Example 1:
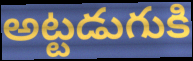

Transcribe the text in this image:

అట్టడుగుకి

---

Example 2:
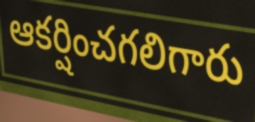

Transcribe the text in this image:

ఆకర్షించగలిగారు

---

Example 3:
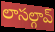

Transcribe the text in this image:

లాసల్గావ్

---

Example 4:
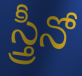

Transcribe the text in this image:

స్త్రీనో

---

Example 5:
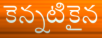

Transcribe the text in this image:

కెన్నటికైన